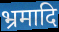
भ्रमादि